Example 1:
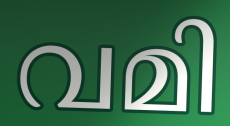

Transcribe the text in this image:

വമി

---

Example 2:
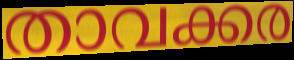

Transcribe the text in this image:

താവക്കര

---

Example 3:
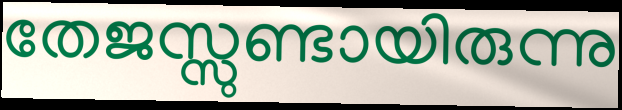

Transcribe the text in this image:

തേജസ്സുണ്ടായിരുന്നു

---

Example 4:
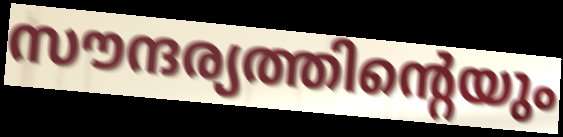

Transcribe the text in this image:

സൗന്ദര്യത്തിന്റെയും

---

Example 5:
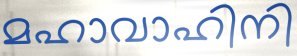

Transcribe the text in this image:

മഹാവാഹിനി